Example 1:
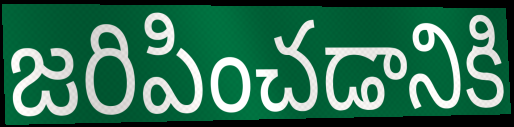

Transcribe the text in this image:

జరిపించడానికి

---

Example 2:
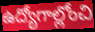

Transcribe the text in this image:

ఉద్యోగాల్లోంచి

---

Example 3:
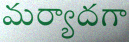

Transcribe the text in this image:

మర్యాదగా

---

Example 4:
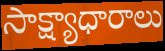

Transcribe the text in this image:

సాక్ష్యాధారాలు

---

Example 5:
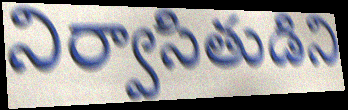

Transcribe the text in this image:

నిర్వాసితుడిని